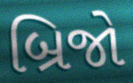
બ્રિજો